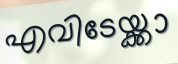
എവിടേയ്ക്കാ